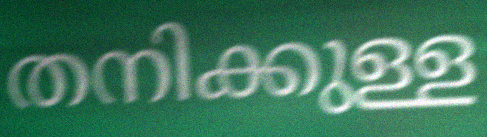
തനിക്കുള്ള